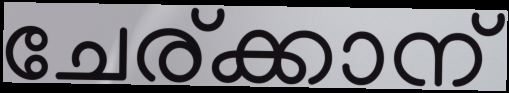
ചേര്ക്കാന്